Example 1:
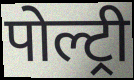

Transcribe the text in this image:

पोल्ट्री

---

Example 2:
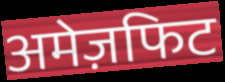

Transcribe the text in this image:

अमेज़फिट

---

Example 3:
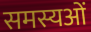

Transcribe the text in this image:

समस्यओं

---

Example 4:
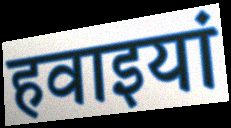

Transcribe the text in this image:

हवाइयां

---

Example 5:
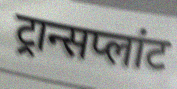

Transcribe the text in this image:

ट्रान्सप्लांट